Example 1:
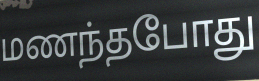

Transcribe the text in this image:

மணந்தபோது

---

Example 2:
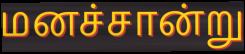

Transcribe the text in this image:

மனச்சான்று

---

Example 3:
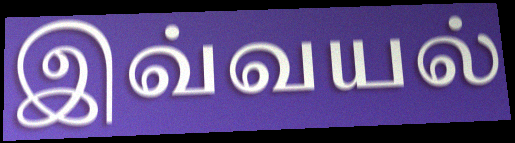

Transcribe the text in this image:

இவ்வயல்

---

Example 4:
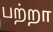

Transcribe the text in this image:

பற்றா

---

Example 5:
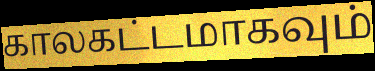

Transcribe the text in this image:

காலகட்டமாகவும்